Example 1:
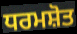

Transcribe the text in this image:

ਧਰਮਸ਼ੋਤ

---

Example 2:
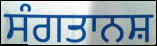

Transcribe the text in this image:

ਸੰਗਤਾਨਸ਼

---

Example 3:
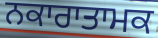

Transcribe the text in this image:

ਨਕਾਰਾਤਾਮਕ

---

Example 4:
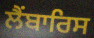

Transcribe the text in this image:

ਲੈਂਬਾਰਿਸ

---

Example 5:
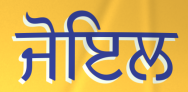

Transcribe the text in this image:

ਜੋਇਲ